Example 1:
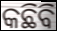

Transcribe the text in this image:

କଛିବି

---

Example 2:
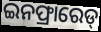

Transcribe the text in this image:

ଇନଫ୍ରାରେଡ୍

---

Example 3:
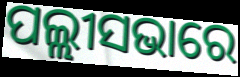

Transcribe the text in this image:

ପଲ୍ଲୀସଭାରେ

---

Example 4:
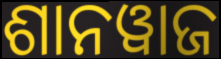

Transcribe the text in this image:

ଶାନୱାଜ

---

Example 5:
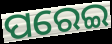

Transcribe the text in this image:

ପରେଇ